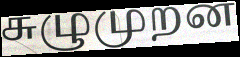
சுழுமுறன